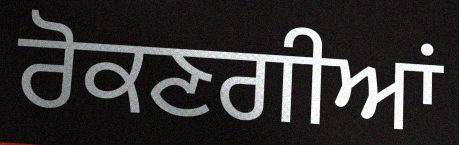
ਰੋਕਣਗੀਆਂ